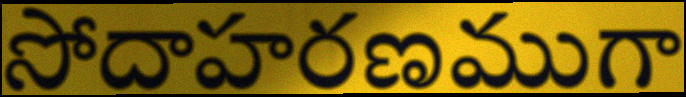
సోదాహరణముగా